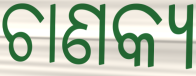
ଚାଣକ୍ଯ